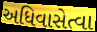
અધિવાસેત્વા